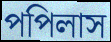
পপিলাস